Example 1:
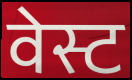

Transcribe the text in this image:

वेस्ट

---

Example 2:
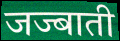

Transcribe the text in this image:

जज्बाती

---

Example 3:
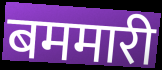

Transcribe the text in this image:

बममारी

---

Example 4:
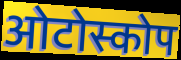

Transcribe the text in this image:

ओटोस्कोप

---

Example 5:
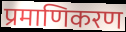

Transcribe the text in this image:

प्रमाणिकरण